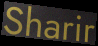
Sharir